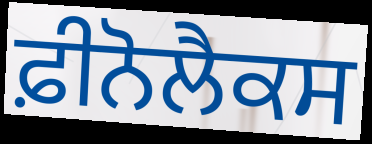
ਫ਼ੀਨੋਲੈਕਸ